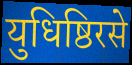
युधिष्ठिरसे